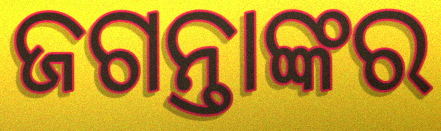
ଜଗନ୍ତାଙ୍କର